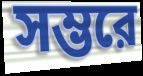
সম্ভরে